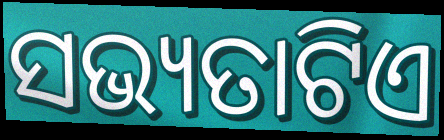
ସଭ୍ୟତାଟିଏ